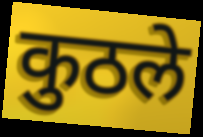
कुठले